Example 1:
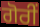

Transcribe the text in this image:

ਗੋਰੀਂ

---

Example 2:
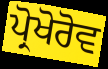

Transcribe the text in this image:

ਪ੍ਰੋਖੋਰੋਵ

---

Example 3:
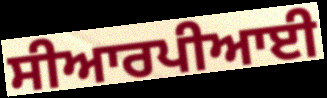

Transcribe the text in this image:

ਸੀਆਰਪੀਆਈ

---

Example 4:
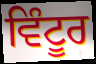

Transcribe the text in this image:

ਵਿੰਟੂਰ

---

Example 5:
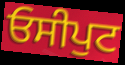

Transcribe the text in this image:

ਓਸੀਪੁਟ